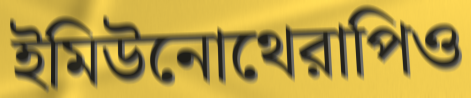
ইমিউনোথেরাপিও